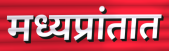
मध्यप्रांतात